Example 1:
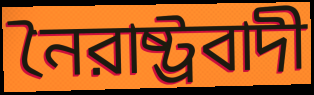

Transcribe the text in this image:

নৈরাষ্ট্রবাদী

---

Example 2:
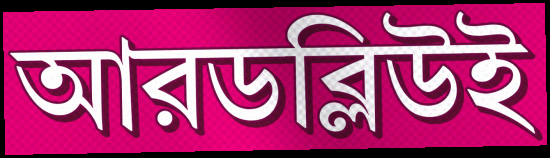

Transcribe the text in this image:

আরডব্লিউই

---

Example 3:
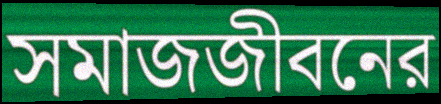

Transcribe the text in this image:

সমাজজীবনের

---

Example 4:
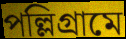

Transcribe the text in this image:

পল্লিগ্রামে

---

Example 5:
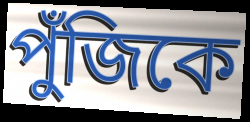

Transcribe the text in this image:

পুঁজিকে